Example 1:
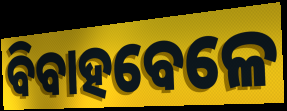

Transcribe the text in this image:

ବିବାହବେଳେ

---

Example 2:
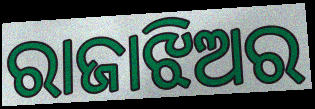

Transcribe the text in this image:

ରାଜାଝିଅର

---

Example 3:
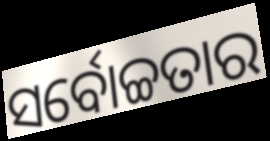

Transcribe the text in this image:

ସର୍ବୋଚ୍ଚତାର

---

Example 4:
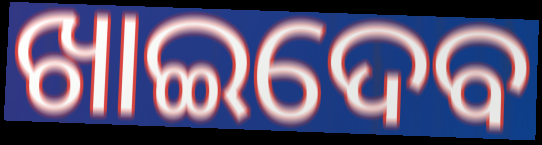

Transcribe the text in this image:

ଖାଇଦେବ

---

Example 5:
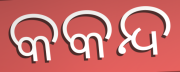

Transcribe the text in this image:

କକନ୍ଦ